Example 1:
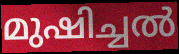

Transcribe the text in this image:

മുഷിച്ചൽ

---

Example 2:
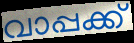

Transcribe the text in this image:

വാപ്പക്ക്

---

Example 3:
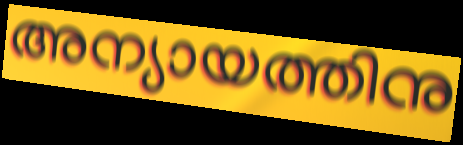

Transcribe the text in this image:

അന്യായത്തിനു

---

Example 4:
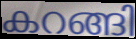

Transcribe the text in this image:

കറങ്ങി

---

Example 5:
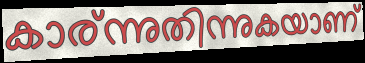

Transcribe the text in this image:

കാര്ന്നുതിന്നുകയാണ്